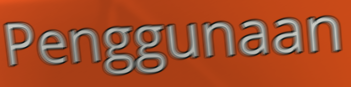
Penggunaan